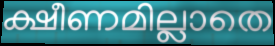
ക്ഷീണമില്ലാതെ